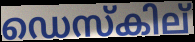
ഡെസ്കില്